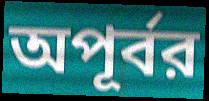
অপূর্বর